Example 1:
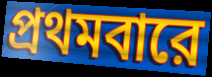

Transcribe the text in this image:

প্রথমবারে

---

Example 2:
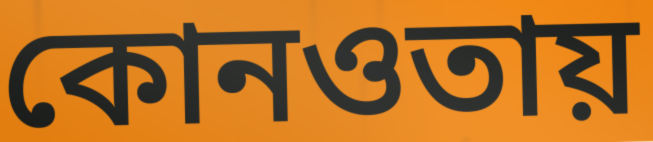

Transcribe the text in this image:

কোনওতায়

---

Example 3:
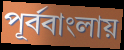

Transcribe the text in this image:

পূর্ববাংলায়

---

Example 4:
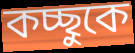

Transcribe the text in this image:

কচ্ছুকে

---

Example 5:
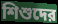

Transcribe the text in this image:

শিশুদের